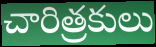
చారిత్రకులు